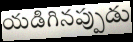
యడిగినప్పుడు